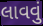
લાવવું